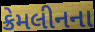
ક્રેમલીનના